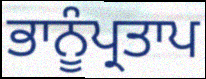
ਭਾਨੂੰਪ੍ਰਤਾਪ